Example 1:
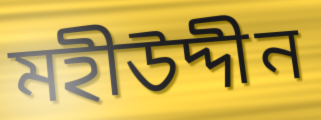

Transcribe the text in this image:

মহীউদ্দীন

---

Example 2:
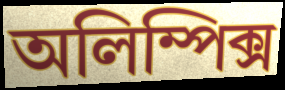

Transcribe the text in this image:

অলিম্পিক্স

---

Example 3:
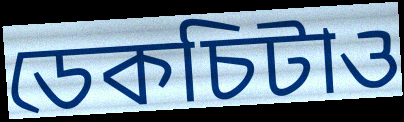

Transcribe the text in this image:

ডেকচিটাও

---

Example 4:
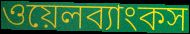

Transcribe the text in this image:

ওয়েলব্যাংকস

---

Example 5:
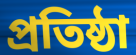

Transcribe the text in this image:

প্রতিষ্ঠা